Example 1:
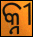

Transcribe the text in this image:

କ୍ନୀ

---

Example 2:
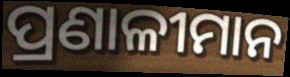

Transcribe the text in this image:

ପ୍ରଣାଳୀମାନ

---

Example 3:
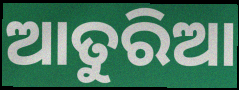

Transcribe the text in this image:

ଆତୁରିଆ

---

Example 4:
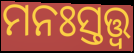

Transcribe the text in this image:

ମନଃସ୍ତତ୍ତ୍ଵ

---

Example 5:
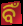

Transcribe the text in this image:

ବିଁ